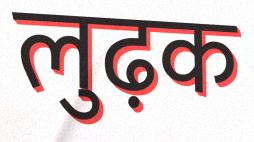
लुढ़क